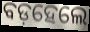
ବଡ଼ହେଲେ